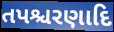
તપશ્ચરણાદિ